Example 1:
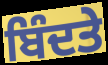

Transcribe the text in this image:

ਬਿੰਦਤੇ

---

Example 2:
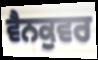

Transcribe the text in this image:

ਵੈਨਕੁਵਰ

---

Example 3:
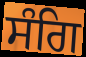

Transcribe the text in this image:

ਸੰਗਿ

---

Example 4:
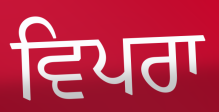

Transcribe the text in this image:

ਵਿਪਰਾ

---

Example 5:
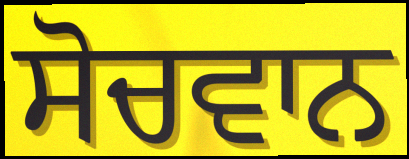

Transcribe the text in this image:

ਸੋਚਵਾਨ